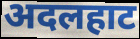
अदलहाट